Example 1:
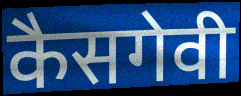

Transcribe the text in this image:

कैसगेवी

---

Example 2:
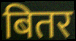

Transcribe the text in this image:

बितर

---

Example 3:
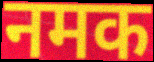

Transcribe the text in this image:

नमक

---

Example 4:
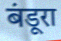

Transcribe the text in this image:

बंडूरा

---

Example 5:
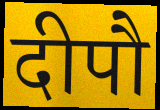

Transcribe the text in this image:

दीपौ